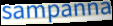
sampanna